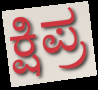
ಕ್ಷಿಪ್ರ